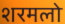
शरमलो